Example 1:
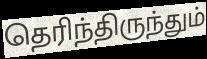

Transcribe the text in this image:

தெரிந்திருந்தும்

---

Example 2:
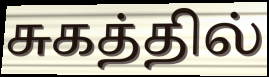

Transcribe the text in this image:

சுகத்தில்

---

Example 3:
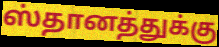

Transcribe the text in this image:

ஸ்தானத்துக்கு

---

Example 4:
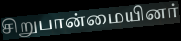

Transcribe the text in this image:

சிறுபான்மையினர்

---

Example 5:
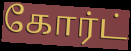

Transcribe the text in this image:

கோர்ட்